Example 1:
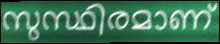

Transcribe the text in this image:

സുസ്ഥിരമാണ്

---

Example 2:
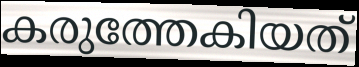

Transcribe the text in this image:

കരുത്തേകിയത്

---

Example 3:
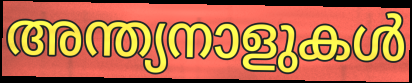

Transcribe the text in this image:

അന്ത്യനാളുകൾ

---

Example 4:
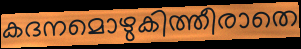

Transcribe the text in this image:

കദനമൊഴുകിത്തീരാതെ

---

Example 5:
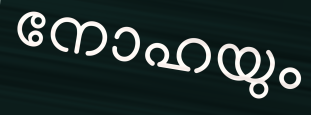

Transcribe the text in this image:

നോഹയും